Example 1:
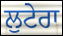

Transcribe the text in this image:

ਲੁਟੇਰਾ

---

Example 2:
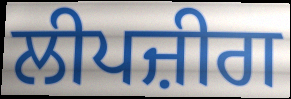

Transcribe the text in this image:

ਲੀਪਜ਼ੀਗ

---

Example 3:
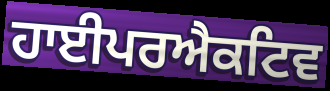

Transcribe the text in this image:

ਹਾਈਪਰਐਕਟਿਵ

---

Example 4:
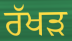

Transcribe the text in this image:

ਰੱਖੜ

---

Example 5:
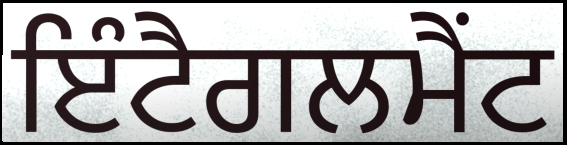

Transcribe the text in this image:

ਇੰਟੈਗਲਮੈਂਟ